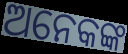
ଅନେକଙ୍କ